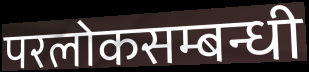
परलोकसम्बन्धी